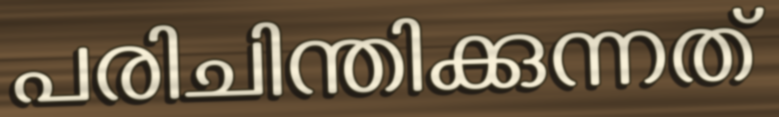
പരിചിന്തിക്കുന്നത്